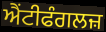
ਐਂਟੀਫੰਗਲਜ਼